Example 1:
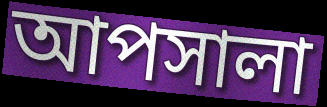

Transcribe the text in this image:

আপসালা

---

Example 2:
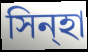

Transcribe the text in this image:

সিন্হা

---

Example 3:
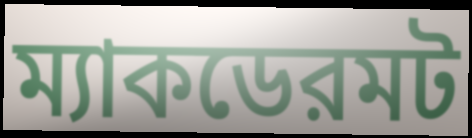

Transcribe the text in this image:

ম্যাকডেরমট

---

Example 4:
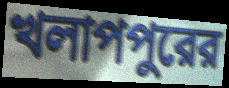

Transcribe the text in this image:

খলাপপুরের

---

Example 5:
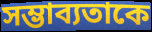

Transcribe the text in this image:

সম্ভাব্যতাকে